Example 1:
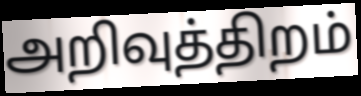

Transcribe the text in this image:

அறிவுத்திறம்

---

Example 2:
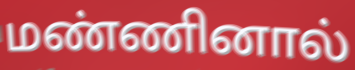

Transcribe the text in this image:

மண்ணினால்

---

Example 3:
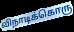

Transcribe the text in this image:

விநாடிக்கொரு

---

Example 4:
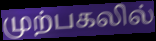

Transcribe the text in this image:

முற்பகலில்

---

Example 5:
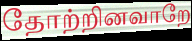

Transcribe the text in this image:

தோற்றினவாறே